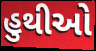
હુથીઓ